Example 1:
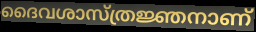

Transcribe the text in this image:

ദൈവശാസ്ത്രജ്ഞനാണ്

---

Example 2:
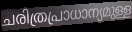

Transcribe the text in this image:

ചരിത്രപ്രാധാന്യമുള്ള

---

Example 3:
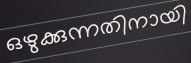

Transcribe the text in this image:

ഒഴുക്കുന്നതിനായി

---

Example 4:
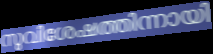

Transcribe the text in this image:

സുവിശേഷത്തിന്നായി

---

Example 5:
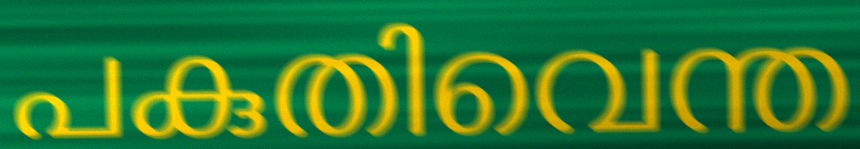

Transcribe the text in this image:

പകുതിവെന്ത